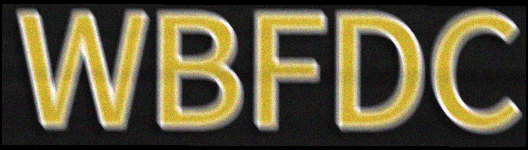
WBFDC